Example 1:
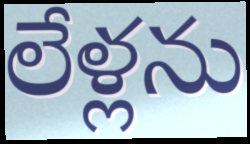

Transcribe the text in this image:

లేళ్లను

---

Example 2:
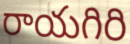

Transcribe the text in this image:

రాయగిరి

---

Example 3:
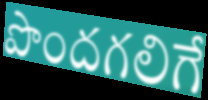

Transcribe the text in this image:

పొందగలిగే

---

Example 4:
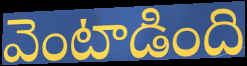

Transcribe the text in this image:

వెంటాడింది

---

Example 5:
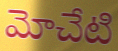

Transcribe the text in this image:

మోచేటి